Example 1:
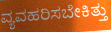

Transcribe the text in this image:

ವ್ಯವಹರಿಸಬೇಕಿತ್ತು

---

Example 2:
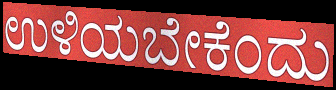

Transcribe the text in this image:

ಉಳಿಯಬೇಕೆಂದು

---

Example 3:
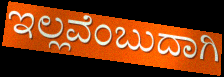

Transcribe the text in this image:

ಇಲ್ಲವೆಂಬುದಾಗಿ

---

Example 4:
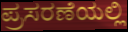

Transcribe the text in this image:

ಪ್ರಸರಣೆಯಲ್ಲಿ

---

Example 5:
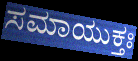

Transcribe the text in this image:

ಸಮಾಯುಕ್ತಃ